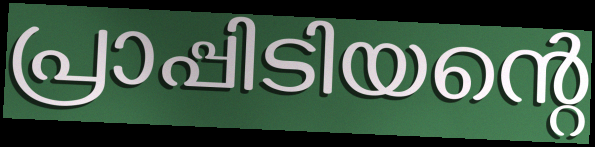
പ്രാപ്പിടിയന്റെ